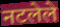
नटलेले